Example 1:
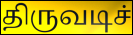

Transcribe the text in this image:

திருவடிச்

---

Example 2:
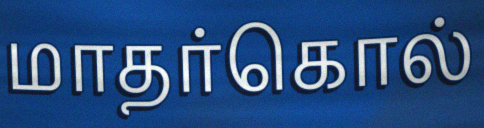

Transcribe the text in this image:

மாதர்கொல்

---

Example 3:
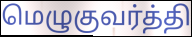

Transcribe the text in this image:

மெழுகுவர்த்தி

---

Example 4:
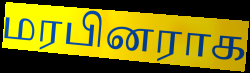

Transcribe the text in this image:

மரபினராக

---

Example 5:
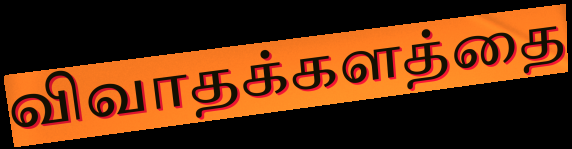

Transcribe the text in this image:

விவாதக்களத்தை